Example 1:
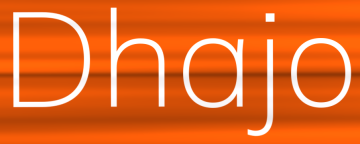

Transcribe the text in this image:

Dhajo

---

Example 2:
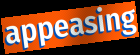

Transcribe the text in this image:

appeasing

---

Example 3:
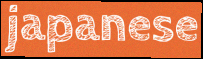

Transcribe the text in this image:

japanese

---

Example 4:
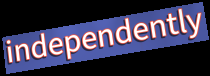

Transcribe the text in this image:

independently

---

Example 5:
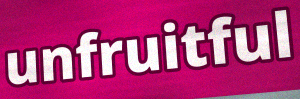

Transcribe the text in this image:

unfruitful